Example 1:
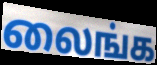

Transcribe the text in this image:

லைங்க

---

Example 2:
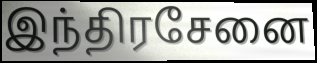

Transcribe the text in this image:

இந்திரசேனை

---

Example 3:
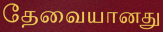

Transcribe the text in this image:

தேவையானது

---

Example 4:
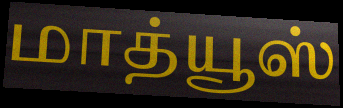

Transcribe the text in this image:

மாத்யூஸ்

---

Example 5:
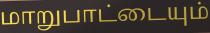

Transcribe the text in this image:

மாறுபாட்டையும்